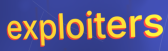
exploiters